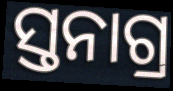
ସ୍ତନାଗ୍ର